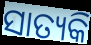
ସାତ୍ଯକି